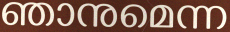
ഞാനുമെന്ന